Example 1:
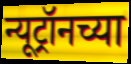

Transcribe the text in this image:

न्यूट्रॉनच्या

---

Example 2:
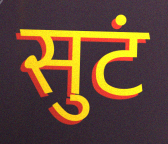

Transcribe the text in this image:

सुटं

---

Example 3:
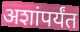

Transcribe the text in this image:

अशांपर्यंत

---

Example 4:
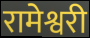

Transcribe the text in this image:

रामेश्वरी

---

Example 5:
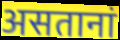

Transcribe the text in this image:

असतानां